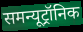
समन्यूट्रॉनिक